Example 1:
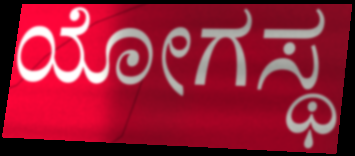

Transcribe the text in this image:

ಯೋಗಸ್ಥ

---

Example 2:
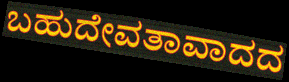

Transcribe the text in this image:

ಬಹುದೇವತಾವಾದದ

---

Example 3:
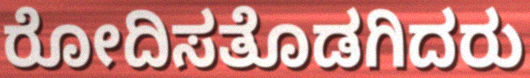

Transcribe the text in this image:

ರೋದಿಸತೊಡಗಿದರು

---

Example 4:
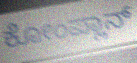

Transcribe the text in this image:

ಕೋಂಪ್ಲಾನ್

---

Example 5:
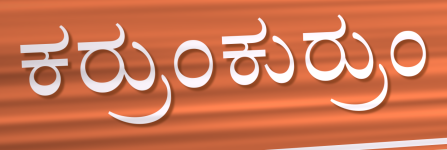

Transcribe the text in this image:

ಕರ್ರುಂಕುರ್ರುಂ